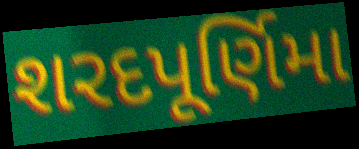
શરદપૂર્ણિમા